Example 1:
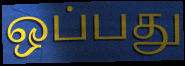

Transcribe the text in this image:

ஒப்பது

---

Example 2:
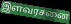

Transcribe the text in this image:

இளவரசனை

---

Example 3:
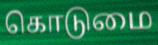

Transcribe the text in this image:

கொடுமை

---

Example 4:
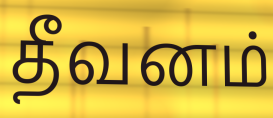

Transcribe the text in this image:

தீவனம்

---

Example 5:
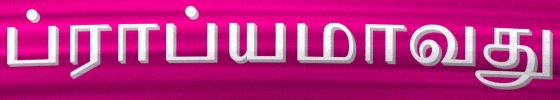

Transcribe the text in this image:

ப்ராப்யமாவது